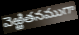
వెఱ్ఱితనముగా